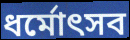
ধর্মোৎসব